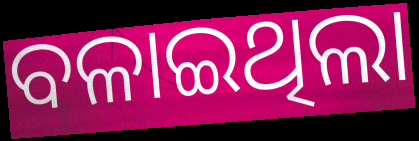
ବଳାଇଥିଲା